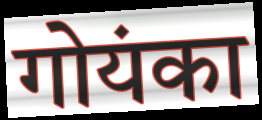
गोयंका